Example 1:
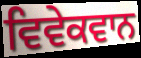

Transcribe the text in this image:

ਵਿਵੇਕਵਾਨ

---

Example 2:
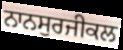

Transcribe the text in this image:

ਨਾਨਸੁਰਜੀਕਲ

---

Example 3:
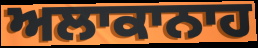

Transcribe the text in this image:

ਅਲਾਕਾਨਾਹ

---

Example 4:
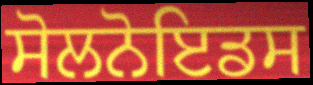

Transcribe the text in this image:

ਸੋਲਨੋਇਡਸ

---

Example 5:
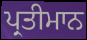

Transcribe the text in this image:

ਪ੍ਰਤੀਮਾਨ